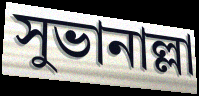
সুভানাল্লা